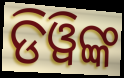
ଡିୱିଙ୍କ